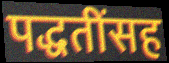
पद्धतींसह